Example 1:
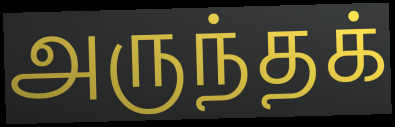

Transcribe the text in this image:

அருந்தக்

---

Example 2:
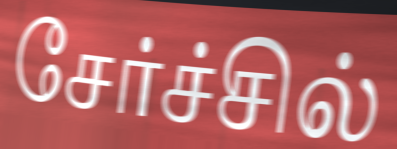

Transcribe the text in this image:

சேர்ச்சில்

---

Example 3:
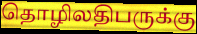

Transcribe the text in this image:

தொழிலதிபருக்கு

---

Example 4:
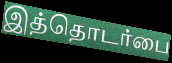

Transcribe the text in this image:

இத்தொடர்பை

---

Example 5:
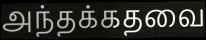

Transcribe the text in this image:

அந்தக்கதவை